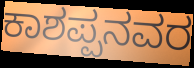
ಕಾಶಪ್ಪನವರ